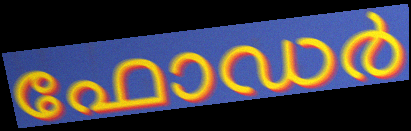
ഫോഡർ